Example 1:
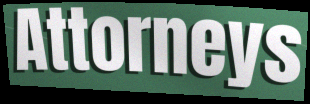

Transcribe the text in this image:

Attorneys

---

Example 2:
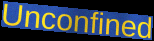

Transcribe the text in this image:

Unconfined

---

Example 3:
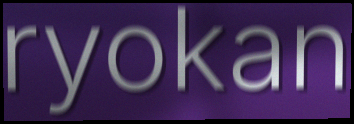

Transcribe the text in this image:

ryokan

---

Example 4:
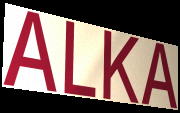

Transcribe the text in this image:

ALKA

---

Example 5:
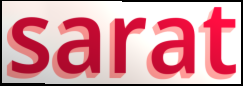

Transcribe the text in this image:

sarat